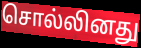
சொல்லினது